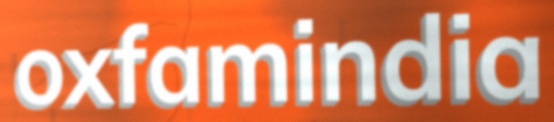
oxfamindia